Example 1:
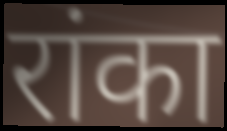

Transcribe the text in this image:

रांका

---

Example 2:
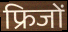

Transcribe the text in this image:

फ्रिजों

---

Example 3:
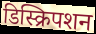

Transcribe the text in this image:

डिस्क्रिपशन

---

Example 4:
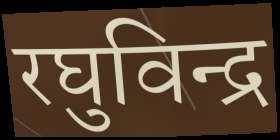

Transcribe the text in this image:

रघुविन्द्र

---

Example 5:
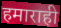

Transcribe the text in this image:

हमाराही